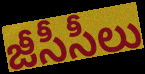
జీసీసీలు